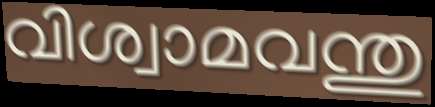
വിശ്വാമവന്തു